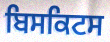
ਬਿਸਕਿਟਸ